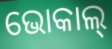
ଭୋକାଲ୍